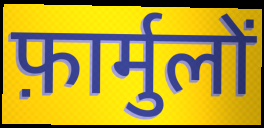
फ़ार्मुलों